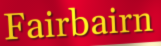
Fairbairn